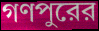
গণপুরের